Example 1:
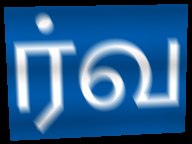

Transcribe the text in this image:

ர்வ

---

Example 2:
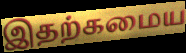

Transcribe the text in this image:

இதற்கமைய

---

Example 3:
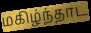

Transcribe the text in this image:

மகிழ்ந்தாட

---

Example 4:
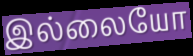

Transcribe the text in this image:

இல்லையோ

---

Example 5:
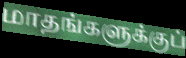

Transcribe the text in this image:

மாதங்களுக்குப்